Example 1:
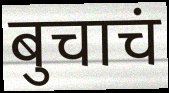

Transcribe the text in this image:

बुचाचं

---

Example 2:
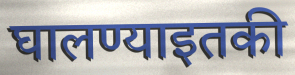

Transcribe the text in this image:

घालण्याइतकी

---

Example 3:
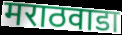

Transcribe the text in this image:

मराठवाडा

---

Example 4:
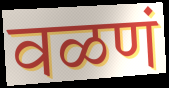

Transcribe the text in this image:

वळणं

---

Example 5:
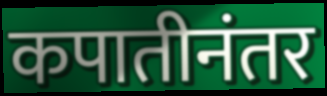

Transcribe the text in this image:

कपातीनंतर